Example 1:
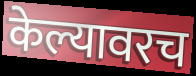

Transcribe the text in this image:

केल्यावरच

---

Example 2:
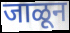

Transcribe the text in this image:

जाळून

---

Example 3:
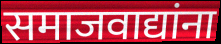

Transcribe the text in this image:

समाजवाद्यांना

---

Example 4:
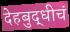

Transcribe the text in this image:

देहबुद्धीचं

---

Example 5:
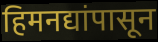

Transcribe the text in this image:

हिमनद्यांपासून